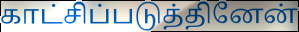
காட்சிப்படுத்தினேன்